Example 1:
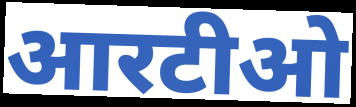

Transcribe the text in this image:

आरटीओ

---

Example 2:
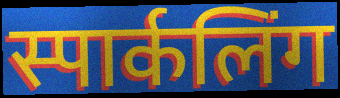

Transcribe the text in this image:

स्पार्कलिंग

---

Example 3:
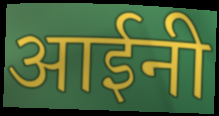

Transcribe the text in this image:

आईनी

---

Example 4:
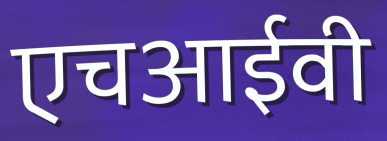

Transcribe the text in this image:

एचआईवी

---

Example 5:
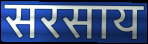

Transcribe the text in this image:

सरसाय